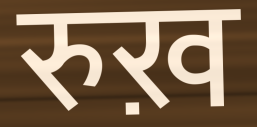
रुख़